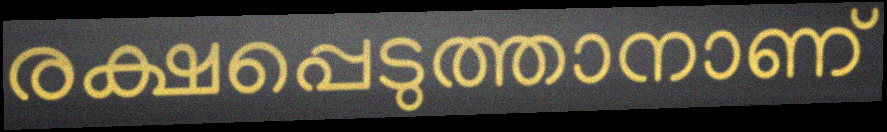
രക്ഷപ്പെടുത്താനാണ്